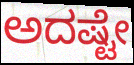
ಅದಷ್ಟೇ